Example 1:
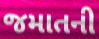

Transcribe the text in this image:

જમાતની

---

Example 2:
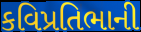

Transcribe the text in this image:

કવિપ્રતિભાની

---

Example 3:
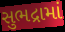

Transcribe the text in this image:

સુભદ્રામાં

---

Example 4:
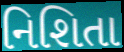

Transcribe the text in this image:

નિશિતા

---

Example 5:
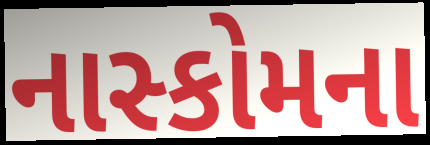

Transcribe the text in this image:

નાસ્કોમના